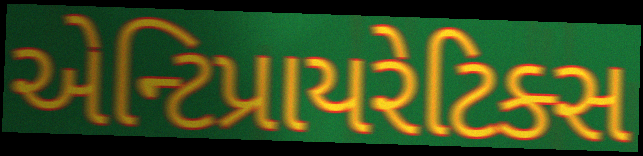
એન્ટિપ્રાયરેટિક્સ